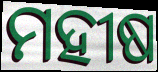
ମହୀଷ